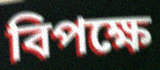
বিপক্ষে